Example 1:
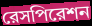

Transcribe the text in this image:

রেসপিরেশন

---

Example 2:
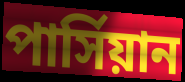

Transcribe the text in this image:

পার্সিয়ান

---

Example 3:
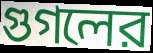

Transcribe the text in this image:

গুগলের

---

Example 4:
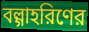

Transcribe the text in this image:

বল্গাহরিণের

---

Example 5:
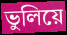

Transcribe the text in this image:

ভুলিয়ে